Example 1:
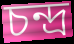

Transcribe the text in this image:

চন্দ্ৰ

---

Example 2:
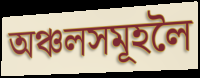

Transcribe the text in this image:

অঞ্চলসমূহলৈ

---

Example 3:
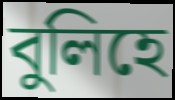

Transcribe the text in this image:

বুলিহে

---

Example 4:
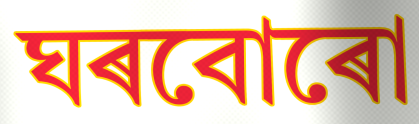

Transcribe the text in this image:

ঘৰবোৰো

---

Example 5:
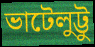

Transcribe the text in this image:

ভাটেলুট্টু